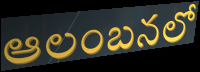
ఆలంబనలో